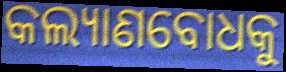
କଲ୍ୟାଣବୋଧକୁ